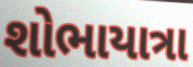
શોભાયાત્રા